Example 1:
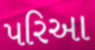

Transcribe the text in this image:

પરિઆ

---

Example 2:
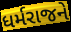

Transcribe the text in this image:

ધર્મરાજને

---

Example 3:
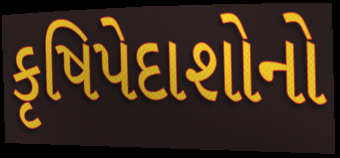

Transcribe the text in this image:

કૃષિપેદાશોનો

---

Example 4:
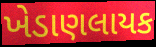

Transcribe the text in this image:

ખેડાણલાયક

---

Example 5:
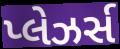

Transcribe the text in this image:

પ્લેઝર્સ